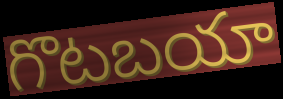
గొటబయా